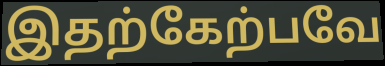
இதற்கேற்பவே